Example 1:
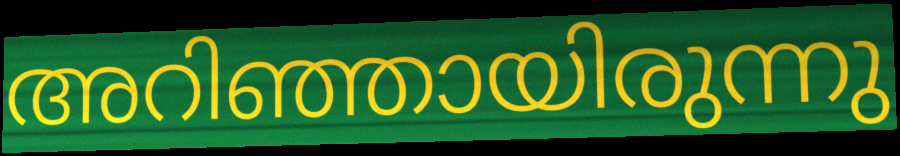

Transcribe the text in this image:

അറിഞ്ഞായിരുന്നു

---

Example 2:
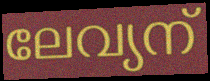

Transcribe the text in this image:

ലേവ്യന്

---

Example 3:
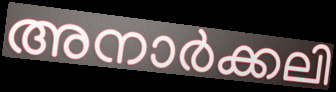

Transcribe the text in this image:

അനാർക്കലി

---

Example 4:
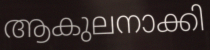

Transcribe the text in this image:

ആകുലനാക്കി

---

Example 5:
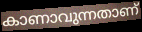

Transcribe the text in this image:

കാണാവുന്നതാണ്